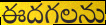
ఈదగలను